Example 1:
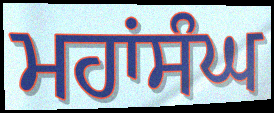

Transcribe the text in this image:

ਮਹਾਂਸੰਘ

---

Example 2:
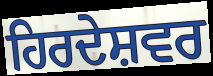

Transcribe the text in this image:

ਹਿਰਦੇਸ਼ਵਰ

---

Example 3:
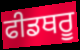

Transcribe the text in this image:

ਫੀਡਥਰੂ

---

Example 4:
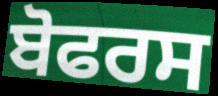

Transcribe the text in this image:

ਬੋਫਰਸ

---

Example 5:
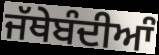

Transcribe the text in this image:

ਜੱਥੇਬੰਦੀਆੰ